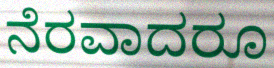
ನೆರವಾದರೂ